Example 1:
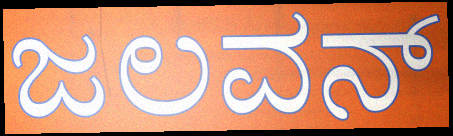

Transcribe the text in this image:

ಜಲವನ್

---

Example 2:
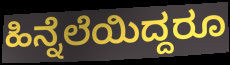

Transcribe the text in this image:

ಹಿನ್ನೆಲೆಯಿದ್ದರೂ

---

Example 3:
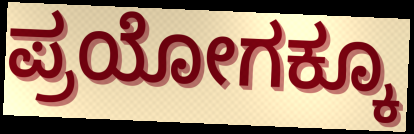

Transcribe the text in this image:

ಪ್ರಯೋಗಕ್ಕೂ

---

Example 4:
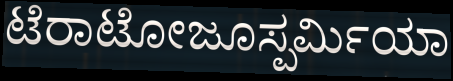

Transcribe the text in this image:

ಟೆರಾಟೋಜೂಸ್ಪರ್ಮಿಯಾ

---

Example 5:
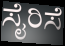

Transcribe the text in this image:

ಸೈರಿಸೆ